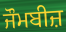
ਜੌਮਬੀਜ਼